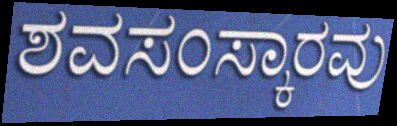
ಶವಸಂಸ್ಕಾರವು